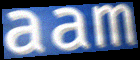
aam